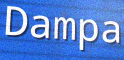
Dampa